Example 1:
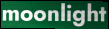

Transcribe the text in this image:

moonlight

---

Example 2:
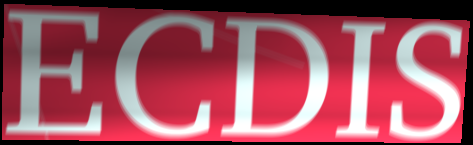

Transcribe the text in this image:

ECDIS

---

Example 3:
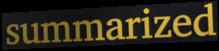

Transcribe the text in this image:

summarized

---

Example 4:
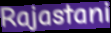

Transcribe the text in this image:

Rajastani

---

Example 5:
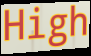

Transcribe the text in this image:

High